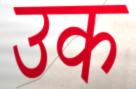
उक